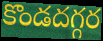
కొండదగ్గర